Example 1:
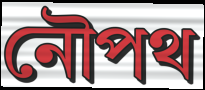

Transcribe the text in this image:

নৌপথ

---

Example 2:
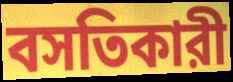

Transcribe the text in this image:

বসতিকারী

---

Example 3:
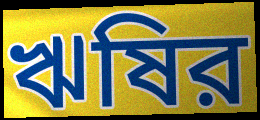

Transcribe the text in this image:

ঋষির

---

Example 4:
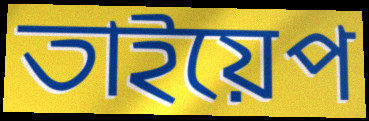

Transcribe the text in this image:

তাইয়েপ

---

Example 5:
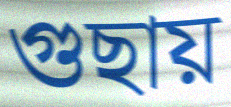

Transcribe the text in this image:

গুছায়